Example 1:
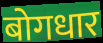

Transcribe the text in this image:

बोगधार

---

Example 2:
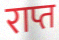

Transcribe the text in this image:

राप्त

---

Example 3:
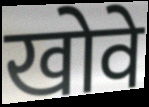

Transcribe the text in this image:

खोवे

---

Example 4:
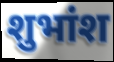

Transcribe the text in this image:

शुभांश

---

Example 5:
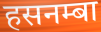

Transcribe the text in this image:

हसनम्बा